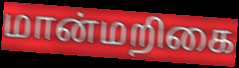
மான்மறிகை